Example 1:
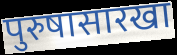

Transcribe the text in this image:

पुरुषासारखा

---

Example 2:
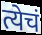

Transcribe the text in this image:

त्येचं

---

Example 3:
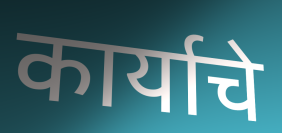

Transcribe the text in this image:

कार्याचे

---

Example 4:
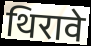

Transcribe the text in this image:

थिरावे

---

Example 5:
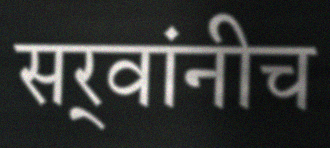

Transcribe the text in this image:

सर्वांनीच